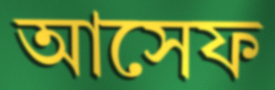
আসেফ